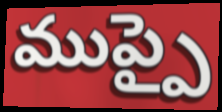
ముప్పై